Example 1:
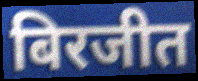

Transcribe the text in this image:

बिरजीत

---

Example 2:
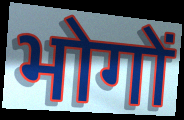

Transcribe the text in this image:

भोगों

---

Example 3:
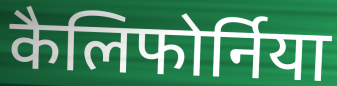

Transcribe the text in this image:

कैलिफोर्निया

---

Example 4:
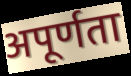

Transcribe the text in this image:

अपूर्णता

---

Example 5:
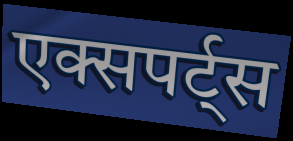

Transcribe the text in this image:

एक्सपर्ट्स